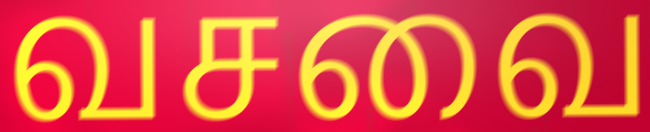
வசவை